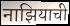
नाझियाची